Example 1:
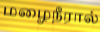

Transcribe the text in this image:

மழைநீரால்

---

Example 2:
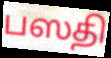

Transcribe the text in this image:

பஸதி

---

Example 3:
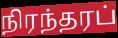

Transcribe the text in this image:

நிரந்தரப்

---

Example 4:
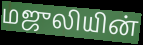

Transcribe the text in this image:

மஜுலியின்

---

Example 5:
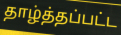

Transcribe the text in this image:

தாழ்த்தப்பட்ட